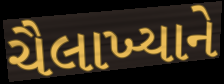
ચૈલાખ્યાને